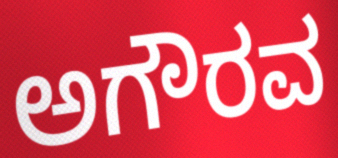
ಅಗೌರವ